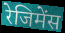
रेजिमेंस